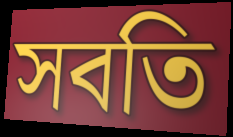
সবতি